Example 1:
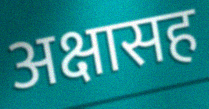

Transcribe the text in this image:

अक्षासह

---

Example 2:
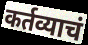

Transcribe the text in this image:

कर्तव्याचं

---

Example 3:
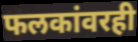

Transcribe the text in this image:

फलकांवरही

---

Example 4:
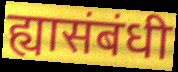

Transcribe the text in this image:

ह्यासंबंधी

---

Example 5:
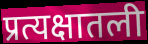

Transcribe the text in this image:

प्रत्यक्षातली